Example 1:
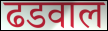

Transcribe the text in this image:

ढडवाल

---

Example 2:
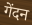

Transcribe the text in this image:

गेंदन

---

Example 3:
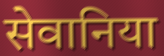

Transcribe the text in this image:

सेवानिया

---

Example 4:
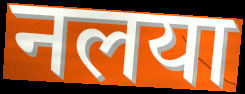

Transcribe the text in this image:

नलया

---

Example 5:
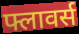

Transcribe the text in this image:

फ्लावर्स